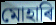
মোহাৰি